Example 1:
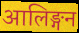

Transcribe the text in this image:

आलिङ्गन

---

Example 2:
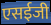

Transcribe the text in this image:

एसईजी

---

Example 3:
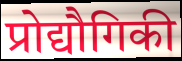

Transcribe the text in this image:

प्रोद्यौगिकी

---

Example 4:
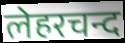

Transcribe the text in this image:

लेहरचन्द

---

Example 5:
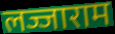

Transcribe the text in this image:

लज्जाराम